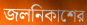
জলনিকাশের